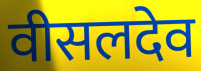
वीसलदेव